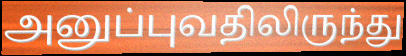
அனுப்புவதிலிருந்து